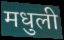
मधुली